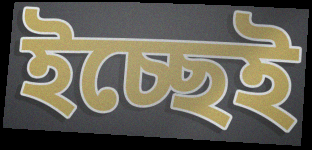
ইচ্ছেই